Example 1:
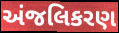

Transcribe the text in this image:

અંજલિકરણ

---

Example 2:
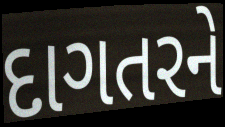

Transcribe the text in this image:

દાગતરને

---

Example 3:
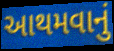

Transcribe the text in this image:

આથમવાનું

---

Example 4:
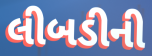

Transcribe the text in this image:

લીબડીની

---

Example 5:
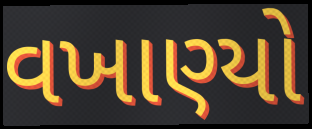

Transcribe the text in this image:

વખાણ્યો